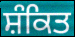
ਸ਼ੰਕਿਤ